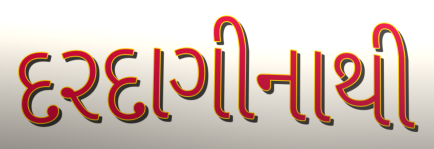
દરદાગીનાથી